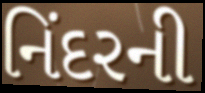
નિંદરની